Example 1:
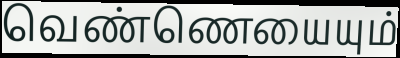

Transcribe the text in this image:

வெண்ணெயையும்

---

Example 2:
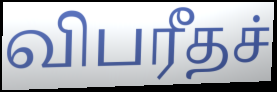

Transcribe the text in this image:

விபரீதச்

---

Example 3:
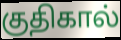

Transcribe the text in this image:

குதிகால்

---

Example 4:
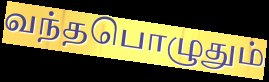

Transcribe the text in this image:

வந்தபொழுதும்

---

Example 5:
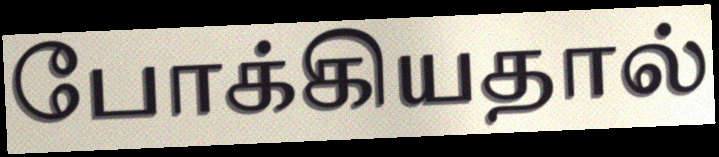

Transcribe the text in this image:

போக்கியதால்